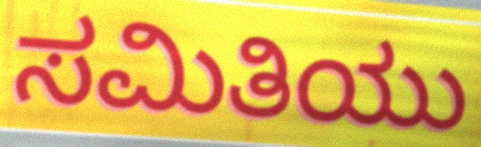
ಸಮಿತಿಯು